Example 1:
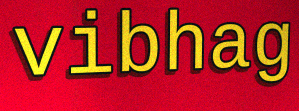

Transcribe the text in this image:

vibhag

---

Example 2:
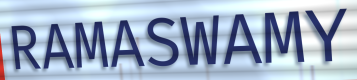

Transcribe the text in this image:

RAMASWAMY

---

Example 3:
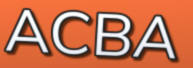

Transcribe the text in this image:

ACBA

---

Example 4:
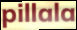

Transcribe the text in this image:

pillala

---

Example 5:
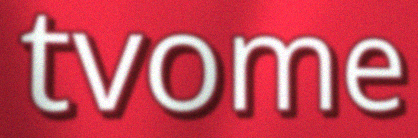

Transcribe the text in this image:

tvome